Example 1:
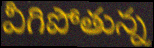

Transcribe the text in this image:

వీగిపోతున్న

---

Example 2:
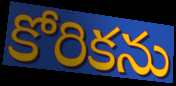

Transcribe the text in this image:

కోరికను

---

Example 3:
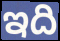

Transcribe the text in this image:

ఇది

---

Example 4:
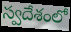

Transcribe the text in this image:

స్వదేశంలో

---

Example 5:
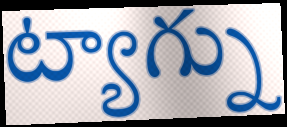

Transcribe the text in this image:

ట్యాగ్ను